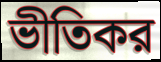
ভীতিকর